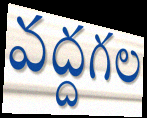
వద్దగల